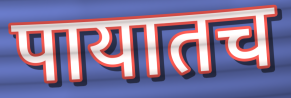
पायातच